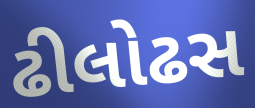
ઢીલોઢસ